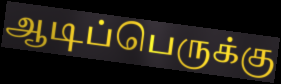
ஆடிப்பெருக்கு